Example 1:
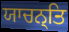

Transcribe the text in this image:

ਯਾਚਨ੍ਤਿ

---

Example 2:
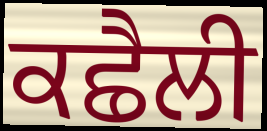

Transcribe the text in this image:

ਕਛੈਲੀ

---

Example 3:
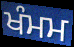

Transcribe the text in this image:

ਖੰਮਮ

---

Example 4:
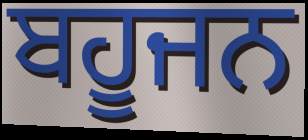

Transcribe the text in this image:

ਬਹੂਜਨ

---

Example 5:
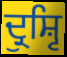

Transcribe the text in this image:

ਦ੍ਰੁਸ਼੍ਟਿ